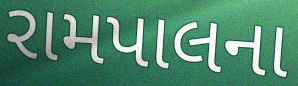
રામપાલના